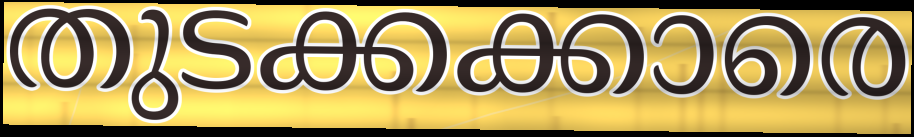
തുടക്കക്കാരെ